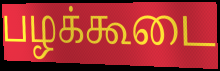
பழக்கூடை